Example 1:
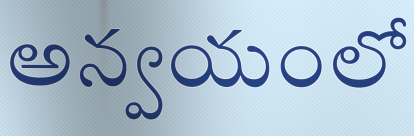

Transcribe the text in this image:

అన్వయంలో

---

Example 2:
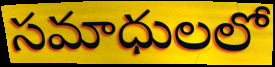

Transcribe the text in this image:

సమాధులలో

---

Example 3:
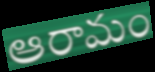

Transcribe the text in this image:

ఆరామం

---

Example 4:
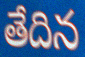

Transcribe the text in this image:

తేదిన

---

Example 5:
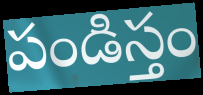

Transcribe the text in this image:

పండిస్తం